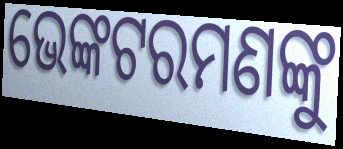
ଭେଙ୍କଟରମଣଙ୍କୁ